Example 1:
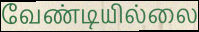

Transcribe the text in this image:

வேண்டியில்லை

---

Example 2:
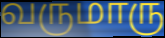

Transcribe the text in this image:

வருமாரு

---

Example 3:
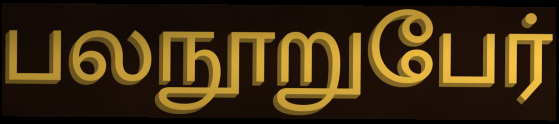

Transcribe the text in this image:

பலநூறுபேர்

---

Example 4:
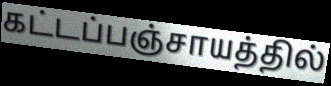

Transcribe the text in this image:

கட்டப்பஞ்சாயத்தில்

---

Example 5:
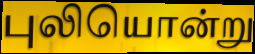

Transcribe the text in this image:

புலியொன்று